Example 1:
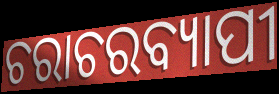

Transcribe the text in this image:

ଚରାଚରବ୍ୟାପୀ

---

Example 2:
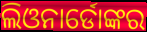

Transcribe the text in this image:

ଲିଓନାର୍ଡୋଙ୍କର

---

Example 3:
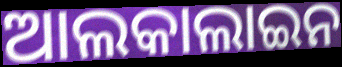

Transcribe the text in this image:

ଆଲକାଲାଇନ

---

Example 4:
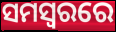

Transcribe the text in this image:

ସମସ୍ବରରେ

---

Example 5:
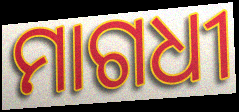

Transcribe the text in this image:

ମାଗଧୀ